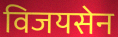
विजयसेन